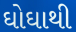
ઘોઘાથી